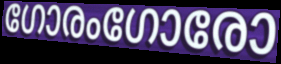
ഗോരംഗോരോ